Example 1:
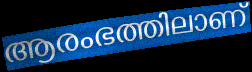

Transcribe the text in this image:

ആരംഭത്തിലാണ്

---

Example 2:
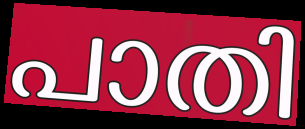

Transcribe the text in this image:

പാതി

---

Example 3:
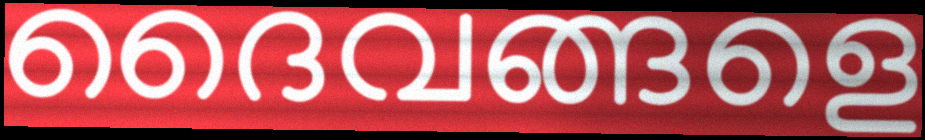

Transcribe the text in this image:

ദൈവങ്ങളെ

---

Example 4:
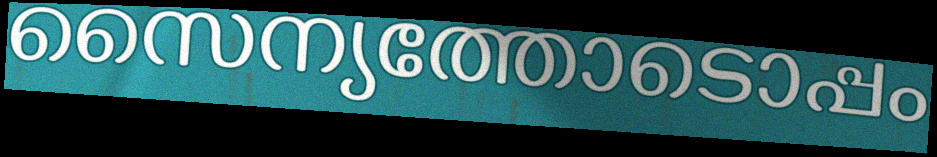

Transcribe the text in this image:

സൈന്യത്തോടൊപ്പം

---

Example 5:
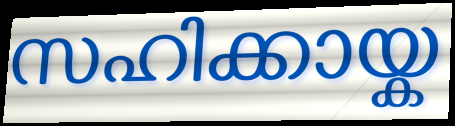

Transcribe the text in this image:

സഹിക്കായ്ക